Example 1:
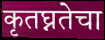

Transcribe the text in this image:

कृतघ्नतेचा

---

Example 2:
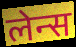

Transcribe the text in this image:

लेन्स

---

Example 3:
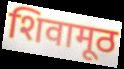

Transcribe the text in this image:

शिवामूठ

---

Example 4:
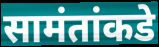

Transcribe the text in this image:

सामंतांकडे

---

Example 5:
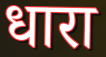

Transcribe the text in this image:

धारा